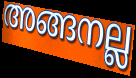
അങ്ങനല്ല